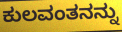
ಕುಲವಂತನನ್ನು